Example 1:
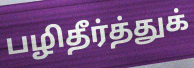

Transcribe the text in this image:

பழிதீர்த்துக்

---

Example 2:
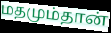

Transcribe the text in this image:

மதமும்தான்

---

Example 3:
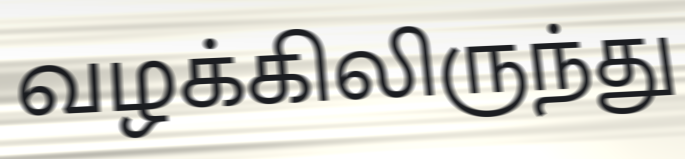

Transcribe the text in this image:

வழக்கிலிருந்து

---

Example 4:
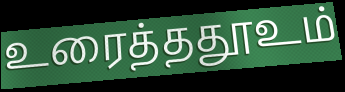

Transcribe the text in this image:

உரைத்ததூஉம்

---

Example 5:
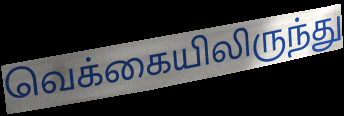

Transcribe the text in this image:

வெக்கையிலிருந்து